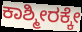
ಕಾಶ್ಮೀರಕ್ಕೇ